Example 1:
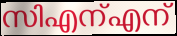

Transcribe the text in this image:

സിഎന്എന്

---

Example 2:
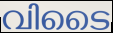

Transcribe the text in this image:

വിടൈ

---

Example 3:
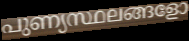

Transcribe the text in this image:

പുണ്യസ്ഥലങ്ങളോ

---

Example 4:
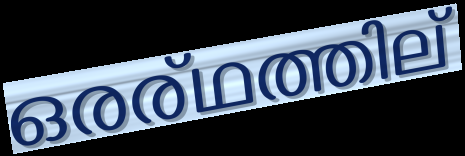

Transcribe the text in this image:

ഒരര്ഥത്തില്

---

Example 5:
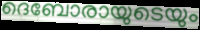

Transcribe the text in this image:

ദെബോരായുടെയും